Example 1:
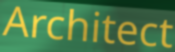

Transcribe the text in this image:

Architect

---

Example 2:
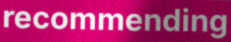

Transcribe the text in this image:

recommending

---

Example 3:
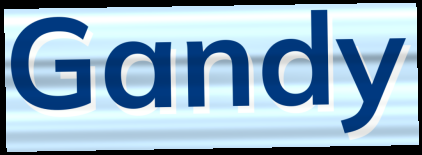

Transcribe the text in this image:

Gandy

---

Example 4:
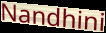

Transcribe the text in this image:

Nandhini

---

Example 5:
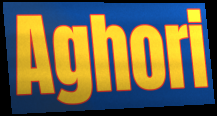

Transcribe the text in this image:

Aghori